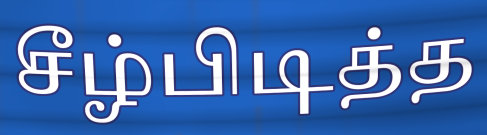
சீழ்பிடித்த